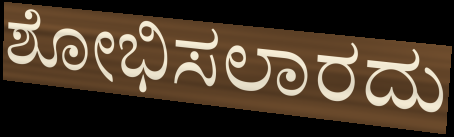
ಶೋಭಿಸಲಾರದು